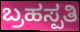
ಬ್ರಹಸ್ಪತಿ